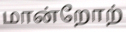
மான்றோற்